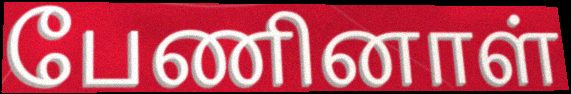
பேணினாள்